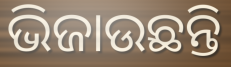
ଭିଜାଉଛନ୍ତି